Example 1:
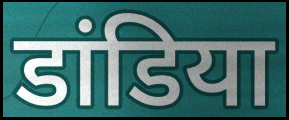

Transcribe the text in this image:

डांडिया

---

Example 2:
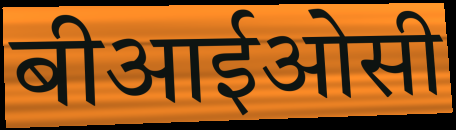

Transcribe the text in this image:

बीआईओसी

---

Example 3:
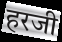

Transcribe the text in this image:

हरजी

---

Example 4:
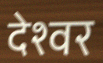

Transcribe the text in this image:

देश्वर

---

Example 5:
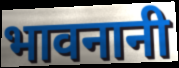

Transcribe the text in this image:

भावनानी